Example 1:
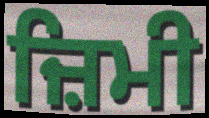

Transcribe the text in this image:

ਜ਼ਿਮੀ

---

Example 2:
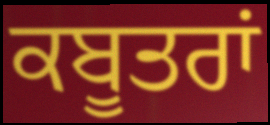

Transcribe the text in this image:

ਕਬੂਤਰਾਂ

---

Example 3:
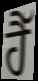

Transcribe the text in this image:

ਹੈੱ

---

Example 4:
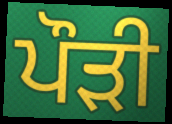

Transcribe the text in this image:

ਪੌੜੀ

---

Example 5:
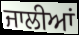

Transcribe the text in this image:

ਜਾਲੀਆਂ